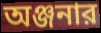
অঞ্জনার